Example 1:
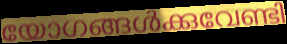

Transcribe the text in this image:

യോഗങ്ങൾക്കുവേണ്ടി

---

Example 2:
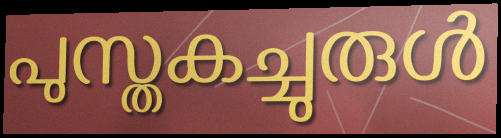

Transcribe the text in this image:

പുസ്തകച്ചുരുൾ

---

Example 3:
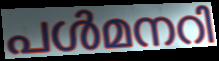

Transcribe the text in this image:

പൾമനറി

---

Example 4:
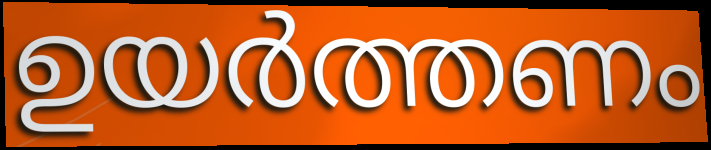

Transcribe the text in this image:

ഉയർത്തണം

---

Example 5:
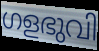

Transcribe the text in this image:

ഗളഭുവി